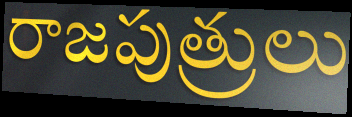
రాజపుత్రులు